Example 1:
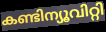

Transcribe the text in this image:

കണ്ടിന്യൂവിറ്റി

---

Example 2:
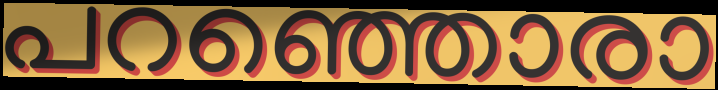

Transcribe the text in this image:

പറഞ്ഞൊരാ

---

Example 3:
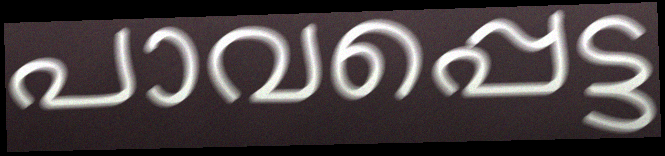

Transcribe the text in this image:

പാവപ്പെട്ട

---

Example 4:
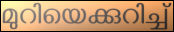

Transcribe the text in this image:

മുറിയെക്കുറിച്ച്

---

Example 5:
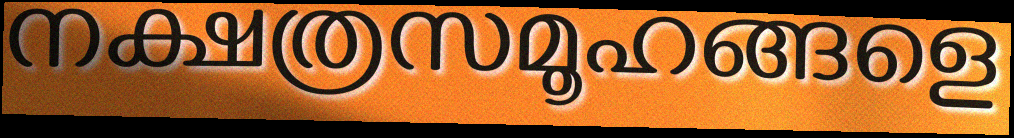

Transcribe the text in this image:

നക്ഷത്രസമൂഹങ്ങളെ